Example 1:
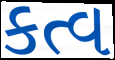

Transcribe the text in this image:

કત્વ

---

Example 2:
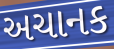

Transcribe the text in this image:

અચાનક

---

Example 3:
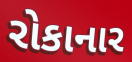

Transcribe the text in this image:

રોકાનાર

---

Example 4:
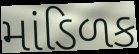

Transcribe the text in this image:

માંડિળક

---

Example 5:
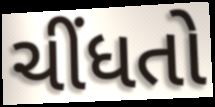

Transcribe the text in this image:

ચીંધતો